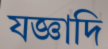
যজ্ঞাদি